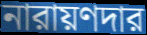
নারায়ণদার